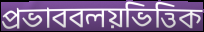
প্রভাববলয়ভিত্তিক